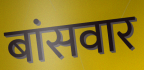
बांसवार